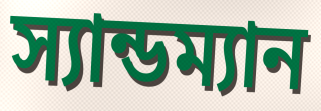
স্যান্ডম্যান